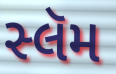
સ્લૅમ